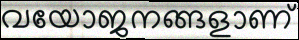
വയോജനങ്ങളാണ്